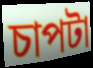
চাপটা